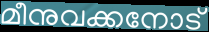
മീനുവക്കനോട്